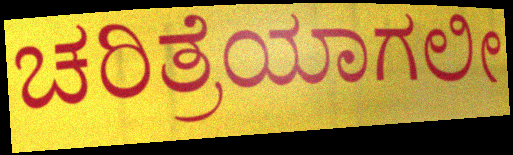
ಚರಿತ್ರೆಯಾಗಲೀ